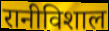
रानीविशाल